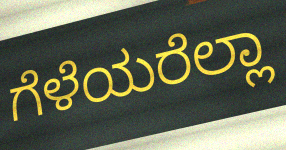
ಗೆಳೆಯರೆಲ್ಲಾ